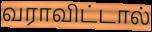
வராவிட்டால்